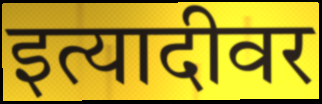
इत्यादीवर